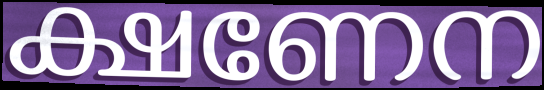
ക്ഷണേന